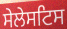
ਸੇਲੇਸਟਿਸ